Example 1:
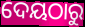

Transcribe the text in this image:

ଦେୟଠାରୁ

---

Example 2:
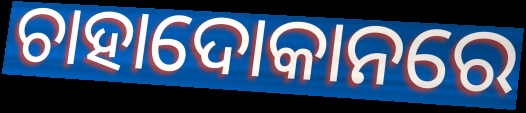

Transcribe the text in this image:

ଚାହାଦୋକାନରେ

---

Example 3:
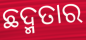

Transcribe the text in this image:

ଛଦ୍ମତାର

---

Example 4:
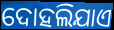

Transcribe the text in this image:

ଦୋହଲିଯାଏ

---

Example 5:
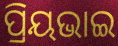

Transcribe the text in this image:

ପ୍ରିୟଭାଇ